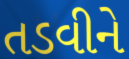
તડવીને